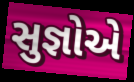
સુજ્ઞોએ